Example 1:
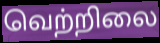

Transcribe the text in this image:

வெற்றிலை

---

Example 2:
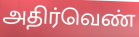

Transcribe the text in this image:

அதிர்வெண்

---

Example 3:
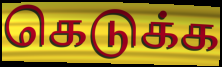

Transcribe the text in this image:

கெடுக்க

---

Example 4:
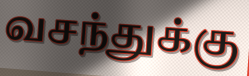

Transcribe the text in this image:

வசந்துக்கு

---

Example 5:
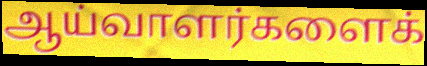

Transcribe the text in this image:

ஆய்வாளர்களைக்